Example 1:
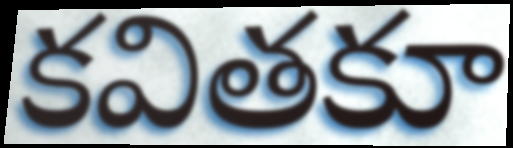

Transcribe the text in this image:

కవితకూ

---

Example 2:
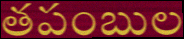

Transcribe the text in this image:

తపంబుల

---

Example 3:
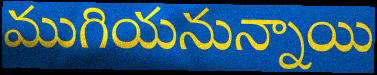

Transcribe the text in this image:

ముగియనున్నాయి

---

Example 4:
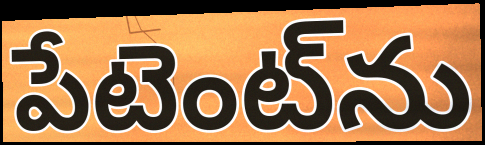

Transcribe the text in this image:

పేటెంట్‌ను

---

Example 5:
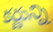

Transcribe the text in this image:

కర్ణున్ని